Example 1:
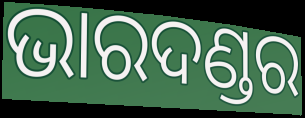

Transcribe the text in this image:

ଭାରଦଣ୍ଡର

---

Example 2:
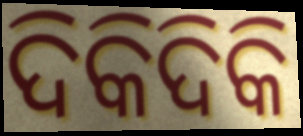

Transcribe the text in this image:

ଦିକିଦିକି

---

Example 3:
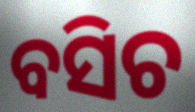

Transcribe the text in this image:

ବସିଚ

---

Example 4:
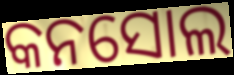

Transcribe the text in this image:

କନସୋଲ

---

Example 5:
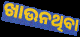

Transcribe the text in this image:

ଖାଉନଥିବା